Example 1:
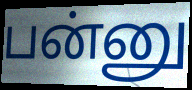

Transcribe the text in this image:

பன்னு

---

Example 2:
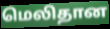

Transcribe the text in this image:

மெலிதான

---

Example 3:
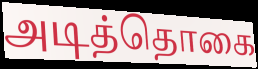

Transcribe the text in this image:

அடித்தொகை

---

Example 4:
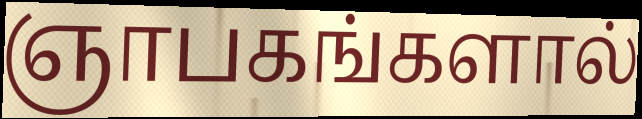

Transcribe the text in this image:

ஞாபகங்களால்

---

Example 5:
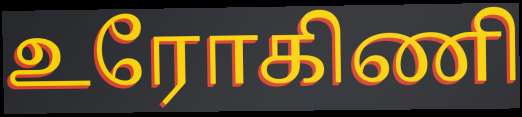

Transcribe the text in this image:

உரோகிணி